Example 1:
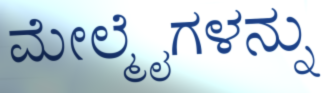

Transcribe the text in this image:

ಮೇಲ್ಮೈಗಳನ್ನು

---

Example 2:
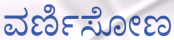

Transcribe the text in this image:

ವರ್ಣಿಸೋಣ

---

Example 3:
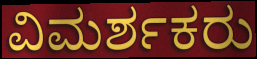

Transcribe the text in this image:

ವಿಮರ್ಶಕರು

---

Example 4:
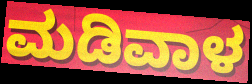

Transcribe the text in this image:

ಮಡಿವಾಳ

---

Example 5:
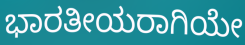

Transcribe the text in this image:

ಭಾರತೀಯರಾಗಿಯೇ